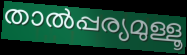
താൽപ്പര്യമുള്ളൂ